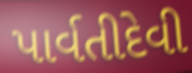
પાર્વતીદેવી